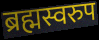
ब्रह्मस्वरुप